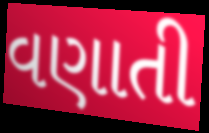
વણાતી